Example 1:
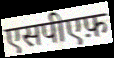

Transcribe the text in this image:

एसपीएफ़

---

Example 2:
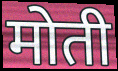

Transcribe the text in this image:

मोती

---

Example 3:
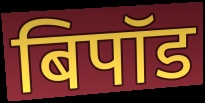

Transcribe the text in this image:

बिपॉड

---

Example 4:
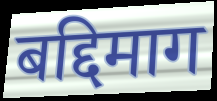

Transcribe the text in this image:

बद्दिमाग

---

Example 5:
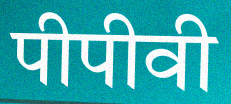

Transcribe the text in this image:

पीपीवी